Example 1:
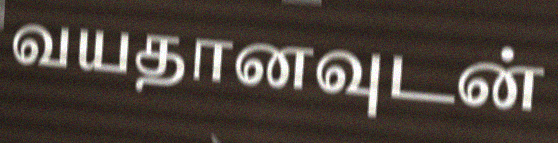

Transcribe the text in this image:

வயதானவுடன்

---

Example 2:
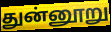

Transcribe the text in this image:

துன்னூறு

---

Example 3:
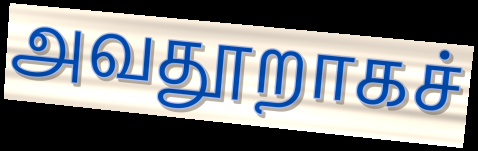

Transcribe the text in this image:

அவதூறாகச்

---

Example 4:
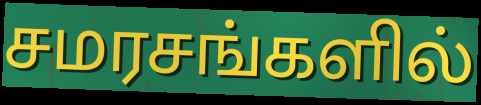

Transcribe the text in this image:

சமரசங்களில்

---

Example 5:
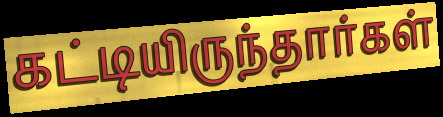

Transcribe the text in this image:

கட்டியிருந்தார்கள்